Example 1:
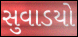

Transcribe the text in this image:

સુવાડયો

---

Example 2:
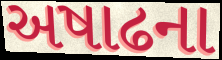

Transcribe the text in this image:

અષાઢના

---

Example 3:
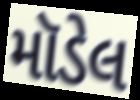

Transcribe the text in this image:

મૉડેલ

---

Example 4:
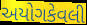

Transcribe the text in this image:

અયોગકેવલી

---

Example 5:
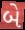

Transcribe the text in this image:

બે